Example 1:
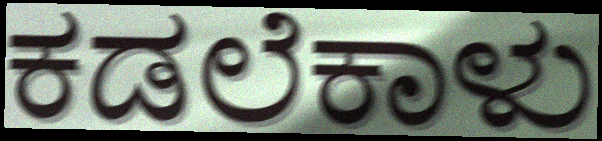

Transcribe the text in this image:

ಕಡಲೆಕಾಳು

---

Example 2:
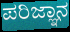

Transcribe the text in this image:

ಪರಿಜ್ಞಾನ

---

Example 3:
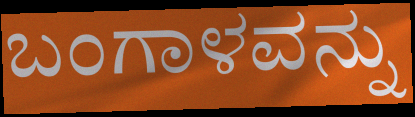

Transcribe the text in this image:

ಬಂಗಾಳವನ್ನು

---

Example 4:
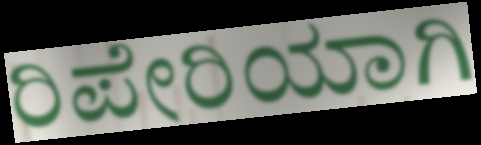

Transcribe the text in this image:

ರಿಪೇರಿಯಾಗಿ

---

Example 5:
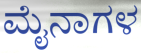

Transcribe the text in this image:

ಮೈನಾಗಳ